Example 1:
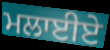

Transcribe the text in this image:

ਮਲਾਈਏ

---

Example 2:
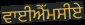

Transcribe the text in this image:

ਵਾਈਐੱਮਸੀਏ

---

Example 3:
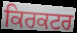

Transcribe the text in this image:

ਕਿਰਕਟਰ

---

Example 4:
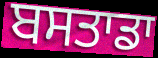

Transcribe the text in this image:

ਬਸਤਾਡਾ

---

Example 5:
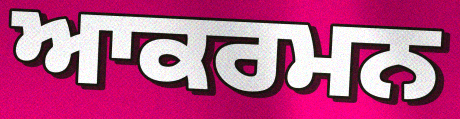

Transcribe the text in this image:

ਆਕਰਮਨ